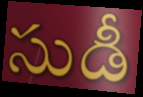
సుడీ